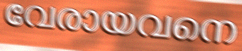
വേരായവനെ